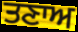
ਤਣਾਅ